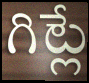
గిట్లే